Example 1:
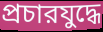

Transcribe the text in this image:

প্রচারযুদ্ধে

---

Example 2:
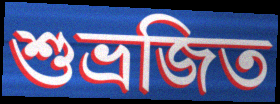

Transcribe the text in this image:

শুভ্রজিত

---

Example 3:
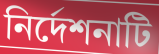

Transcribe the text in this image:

নির্দেশনাটি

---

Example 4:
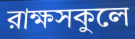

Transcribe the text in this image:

রাক্ষসকুলে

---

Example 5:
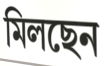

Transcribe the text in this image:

মিলছেন